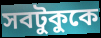
সবটুকুকে